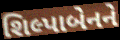
શિલ્પાબેનને